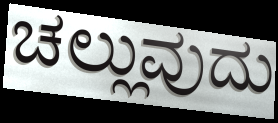
ಚಲ್ಲುವುದು